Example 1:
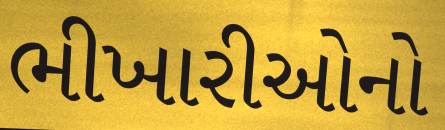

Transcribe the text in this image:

ભીખારીઓનો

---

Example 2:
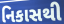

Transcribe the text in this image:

નિકાસથી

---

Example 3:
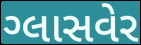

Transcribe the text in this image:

ગ્લાસવેર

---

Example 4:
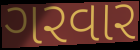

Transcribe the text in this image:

ગરવાર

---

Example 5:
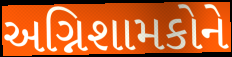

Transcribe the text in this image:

અગ્નિશામકોને